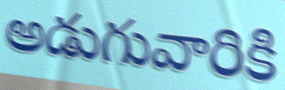
అడుగువారికి